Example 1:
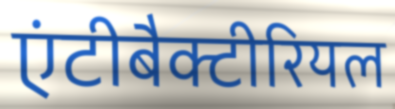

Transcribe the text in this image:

एंटीबैक्टीरियल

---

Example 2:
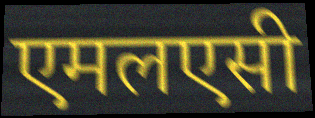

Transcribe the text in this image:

एमलएसी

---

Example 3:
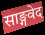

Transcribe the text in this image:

साङ्गवेद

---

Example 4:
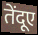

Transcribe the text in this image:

तेंदूए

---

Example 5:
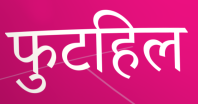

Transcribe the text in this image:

फुटहिल